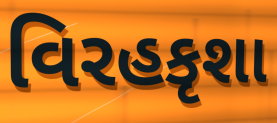
વિરહકૃશા